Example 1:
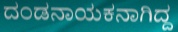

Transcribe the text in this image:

ದಂಡನಾಯಕನಾಗಿದ್ದ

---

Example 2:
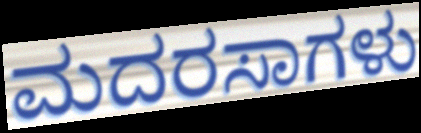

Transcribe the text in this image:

ಮದರಸಾಗಳು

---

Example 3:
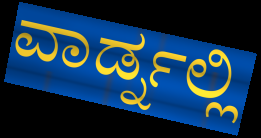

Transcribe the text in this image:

ವಾರ್ಡ್ನಲ್ಲಿ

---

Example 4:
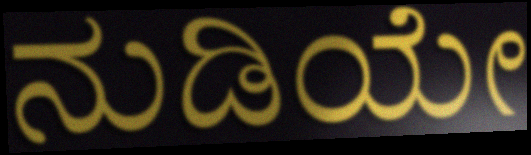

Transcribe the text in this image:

ನುಡಿಯೇ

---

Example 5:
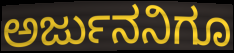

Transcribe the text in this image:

ಅರ್ಜುನನಿಗೂ